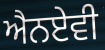
ਐਨਏਵੀ